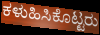
ಕಳುಹಿಸಿಕೊಟ್ಟರು